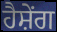
ਹੈਸ਼ੇਂਗ